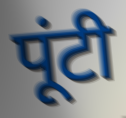
पूंटी